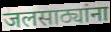
जलसाठ्यांना